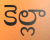
కెల్లా